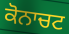
ਕੋਨਾਚਟ